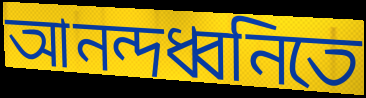
আনন্দধ্বনিতে